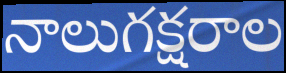
నాలుగక్షరాల